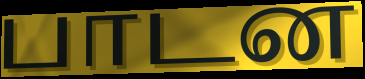
பாடன